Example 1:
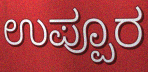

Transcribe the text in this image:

ಉಪ್ಪೂರ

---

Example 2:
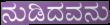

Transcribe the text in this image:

ನುಡಿದವನು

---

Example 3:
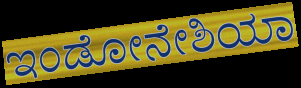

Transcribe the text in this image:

ಇಂಡೋನೇಶಿಯಾ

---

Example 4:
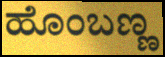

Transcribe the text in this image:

ಹೊಂಬಣ್ಣ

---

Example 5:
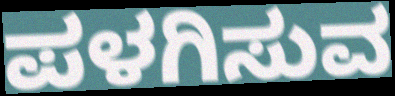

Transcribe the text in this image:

ಪಳಗಿಸುವ